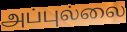
அப்புல்லை